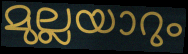
മുല്ലയാറും